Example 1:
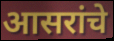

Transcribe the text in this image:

आसरांचे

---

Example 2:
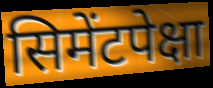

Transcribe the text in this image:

सिमेंटपेक्षा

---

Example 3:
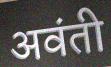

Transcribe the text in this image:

अवंती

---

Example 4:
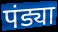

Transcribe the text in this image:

पंड्या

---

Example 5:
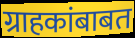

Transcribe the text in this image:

ग्राहकांबाबत